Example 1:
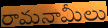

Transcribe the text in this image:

రామనామీలు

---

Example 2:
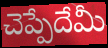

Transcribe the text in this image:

చెప్పేదేమీ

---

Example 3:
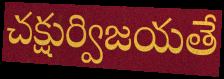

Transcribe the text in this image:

చక్షుర్విజయతే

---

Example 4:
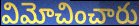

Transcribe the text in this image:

విమోచించారు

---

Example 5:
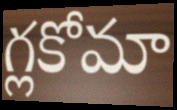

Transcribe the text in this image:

గ్లకోమా